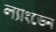
ল্যাংডেন